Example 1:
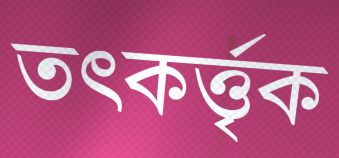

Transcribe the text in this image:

তৎকর্ত্তৃক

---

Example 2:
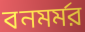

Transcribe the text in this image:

বনমর্মর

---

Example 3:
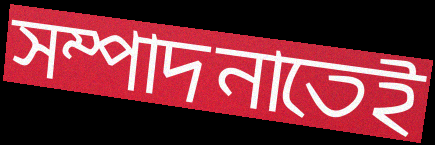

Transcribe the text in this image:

সম্পাদনাতেই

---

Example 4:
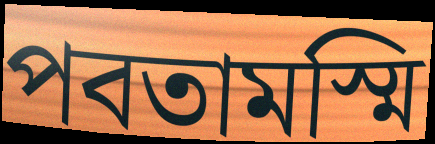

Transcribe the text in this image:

পবতামস্মি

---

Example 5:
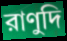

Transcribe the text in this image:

রাণুদি